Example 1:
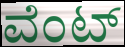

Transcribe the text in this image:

ವೆಂಟ್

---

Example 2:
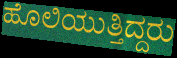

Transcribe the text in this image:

ಹೊಲಿಯುತ್ತಿದ್ದರು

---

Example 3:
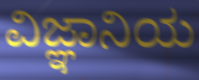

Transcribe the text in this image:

ವಿಜ್ಞಾನಿಯ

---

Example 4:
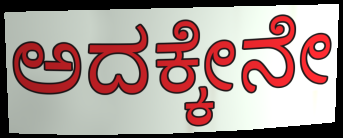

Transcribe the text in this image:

ಅದಕ್ಕೇನೇ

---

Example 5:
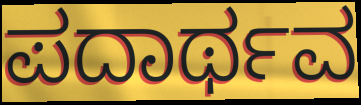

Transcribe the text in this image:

ಪದಾರ್ಥವ